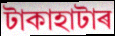
টাকাহাটাৰ